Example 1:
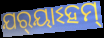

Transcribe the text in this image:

ଯର୍‌ୟାଽହମ୍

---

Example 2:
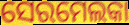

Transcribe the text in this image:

ସେରମେଲକା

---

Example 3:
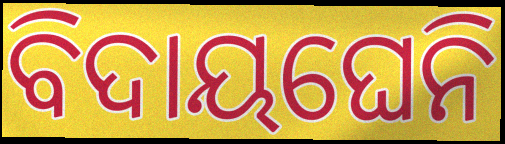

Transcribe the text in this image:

ବିଦାୟଘେନି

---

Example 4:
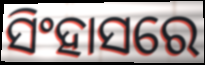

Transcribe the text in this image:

ସିଂହାସରେ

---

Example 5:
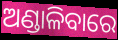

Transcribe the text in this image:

ଅଣ୍ଡାଳିବାରେ